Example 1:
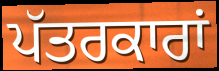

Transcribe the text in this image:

ਪੱਤਰਕਾਰਾਂ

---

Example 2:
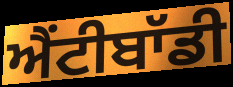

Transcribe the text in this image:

ਐਂਟੀਬਾੱਡੀ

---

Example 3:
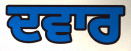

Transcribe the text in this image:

ਦਵਾਰ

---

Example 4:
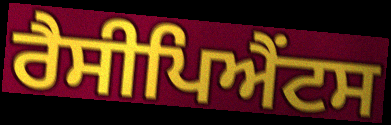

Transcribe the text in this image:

ਰੈਸੀਪਿਐਂਟਸ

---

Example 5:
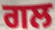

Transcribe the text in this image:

ਗਲ